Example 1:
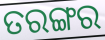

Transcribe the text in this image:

ତରଙ୍ଗର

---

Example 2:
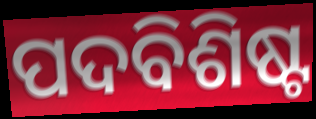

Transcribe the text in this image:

ପଦବିଶିଷ୍ଟ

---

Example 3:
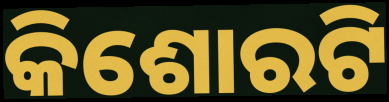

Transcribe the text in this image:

କିଶୋରଟି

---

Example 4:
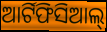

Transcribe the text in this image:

ଆର୍ଟିଫିସିଆଲ୍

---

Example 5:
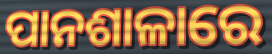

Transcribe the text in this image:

ପାନଶାଳାରେ